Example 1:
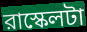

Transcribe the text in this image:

রাস্কেলটা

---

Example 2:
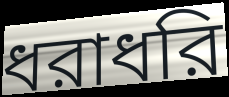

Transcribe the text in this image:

ধরাধরি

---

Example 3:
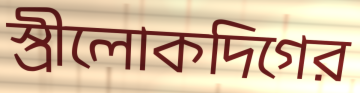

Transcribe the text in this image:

স্ত্রীলোকদিগের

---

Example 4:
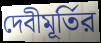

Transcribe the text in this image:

দেবীমূর্তির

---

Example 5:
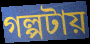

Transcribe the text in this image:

গল্পটায়